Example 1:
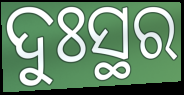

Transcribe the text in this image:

ଦୁଃସ୍ଥର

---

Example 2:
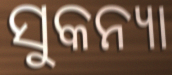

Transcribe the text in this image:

ସୁକନ୍ୟା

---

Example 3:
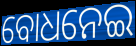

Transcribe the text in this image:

ବୋଧନେଇ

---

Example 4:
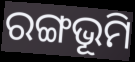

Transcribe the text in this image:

ରଙ୍ଗଭୂମି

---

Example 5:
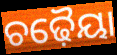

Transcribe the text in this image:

ଚଢ଼ୈୟା